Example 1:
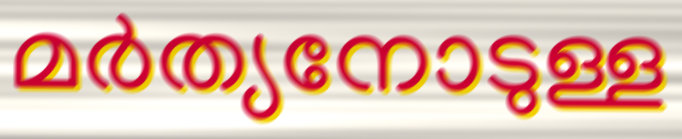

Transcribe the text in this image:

മർത്യനോടുള്ള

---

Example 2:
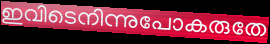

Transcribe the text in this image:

ഇവിടെനിന്നുപോകരുതേ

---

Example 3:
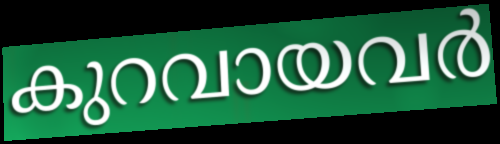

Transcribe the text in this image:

കുറവായവർ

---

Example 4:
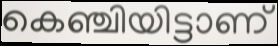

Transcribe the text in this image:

കെഞ്ചിയിട്ടാണ്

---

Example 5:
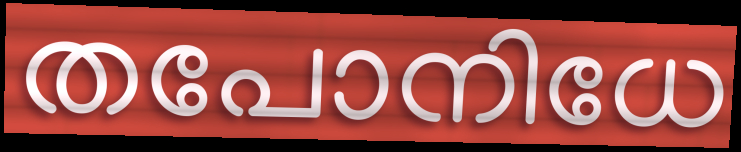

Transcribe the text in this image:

തപോനിധേ